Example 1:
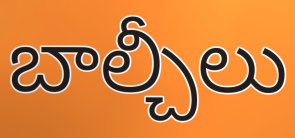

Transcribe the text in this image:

బాల్చీలు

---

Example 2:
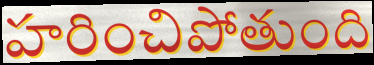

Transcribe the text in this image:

హరించిపోతుంది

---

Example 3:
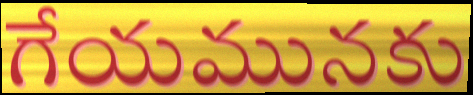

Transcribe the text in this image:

గేయమునకు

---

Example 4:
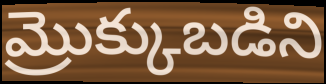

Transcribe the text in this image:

మ్రొక్కుబడిని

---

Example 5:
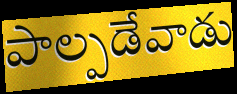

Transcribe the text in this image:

పాల్పడేవాడు